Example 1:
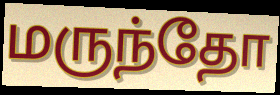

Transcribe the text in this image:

மருந்தோ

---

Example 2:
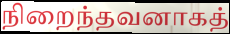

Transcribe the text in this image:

நிறைந்தவனாகத்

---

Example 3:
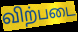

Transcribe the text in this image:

விற்படை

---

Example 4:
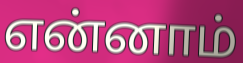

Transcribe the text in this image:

என்னாம்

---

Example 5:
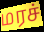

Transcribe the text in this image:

மரச்